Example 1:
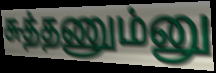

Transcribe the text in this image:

சுத்தணும்னு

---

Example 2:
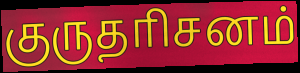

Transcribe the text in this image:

குருதரிசனம்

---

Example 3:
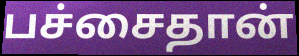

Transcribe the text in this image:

பச்சைதான்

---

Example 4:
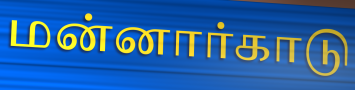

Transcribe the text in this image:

மன்னார்காடு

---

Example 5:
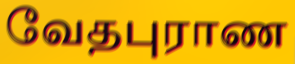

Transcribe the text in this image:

வேதபுராண